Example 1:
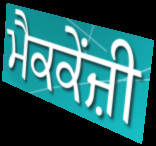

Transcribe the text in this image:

ਮੈਕਕੇਂਜ਼ੀ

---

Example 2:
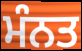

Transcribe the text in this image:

ਮੰਨਤ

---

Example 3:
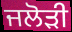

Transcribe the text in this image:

ਜਲੋੜੀ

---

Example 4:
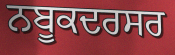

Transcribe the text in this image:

ਨਬੂਕਦਰਸਰ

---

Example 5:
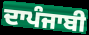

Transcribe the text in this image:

ਦਾਪੰਜਾਬੀ